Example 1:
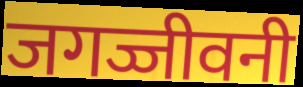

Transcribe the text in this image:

जगज्जीवनी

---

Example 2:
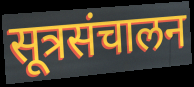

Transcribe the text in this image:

सूत्रसंचालन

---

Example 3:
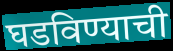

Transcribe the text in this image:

घडविण्याची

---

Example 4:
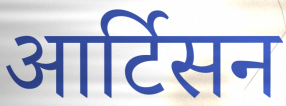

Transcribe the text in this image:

आर्टिसन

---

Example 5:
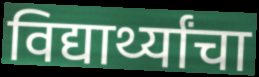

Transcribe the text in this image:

विद्यार्थ्यांचा